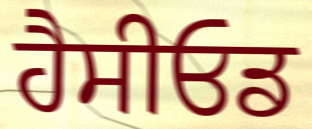
ਹੈਸੀਓਡ